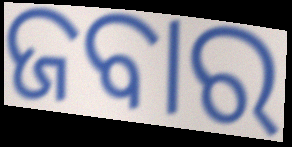
ଜବାର